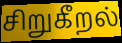
சிறுகீறல்